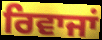
ਰਿਵਾਜਾਂ